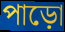
পাড়ো